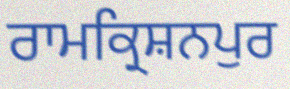
ਰਾਮਕ੍ਰਿਸ਼ਨਪੁਰ